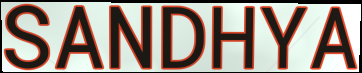
SANDHYA